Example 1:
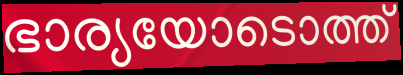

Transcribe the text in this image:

ഭാര്യയോടൊത്ത്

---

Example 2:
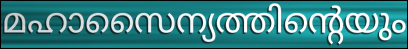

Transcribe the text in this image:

മഹാസൈന്യത്തിന്റെയും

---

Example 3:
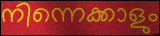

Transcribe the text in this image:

നിന്നെക്കാളും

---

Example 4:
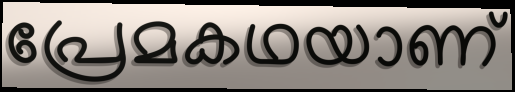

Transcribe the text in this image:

പ്രേമകഥയാണ്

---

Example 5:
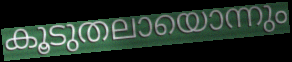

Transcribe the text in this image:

കൂടുതലായൊന്നും